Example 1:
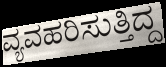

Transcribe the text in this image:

ವ್ಯವಹರಿಸುತ್ತಿದ್ದ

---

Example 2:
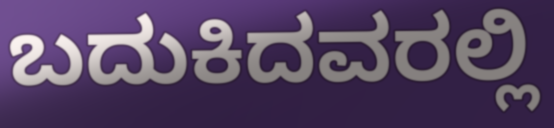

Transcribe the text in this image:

ಬದುಕಿದವರಲ್ಲಿ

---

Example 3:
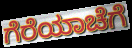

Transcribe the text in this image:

ಗೆರೆಯಾಚೆಗೆ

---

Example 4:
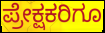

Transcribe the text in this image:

ಪ್ರೇಕ್ಷಕರಿಗೂ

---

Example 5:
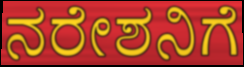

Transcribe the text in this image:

ನರೇಶನಿಗೆ